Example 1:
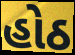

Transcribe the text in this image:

હોઠ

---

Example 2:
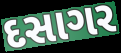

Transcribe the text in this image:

દસાગર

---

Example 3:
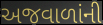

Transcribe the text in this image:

અજવાળાંની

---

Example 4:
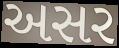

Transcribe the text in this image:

અસર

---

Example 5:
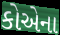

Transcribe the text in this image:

કોએના